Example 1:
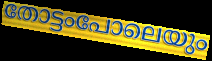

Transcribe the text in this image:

തോട്ടംപോലെയും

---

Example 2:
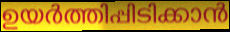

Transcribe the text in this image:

ഉയർത്തിപ്പിടിക്കാൻ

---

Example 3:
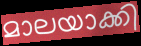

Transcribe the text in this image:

മാലയാക്കി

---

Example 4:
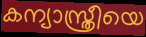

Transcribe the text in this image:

കന്യാസ്ത്രീയെ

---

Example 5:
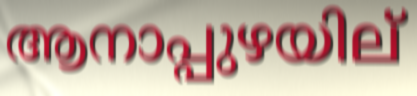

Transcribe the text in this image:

ആനാപ്പുഴയില്